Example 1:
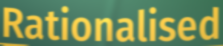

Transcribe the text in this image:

Rationalised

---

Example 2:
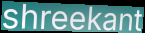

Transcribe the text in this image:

shreekant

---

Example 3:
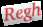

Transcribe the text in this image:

Regh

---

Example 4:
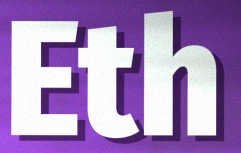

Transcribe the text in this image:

Eth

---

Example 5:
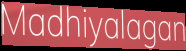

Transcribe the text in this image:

Madhiyalagan